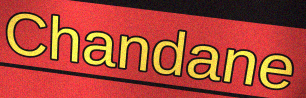
Chandane